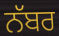
ਨੱਬਰ